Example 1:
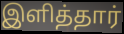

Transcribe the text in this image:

இளித்தார்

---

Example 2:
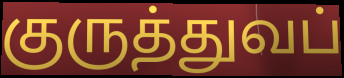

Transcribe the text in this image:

குருத்துவப்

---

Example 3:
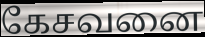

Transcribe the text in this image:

கேசவனை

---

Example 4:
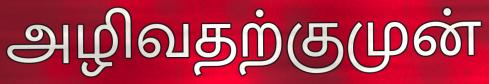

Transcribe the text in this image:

அழிவதற்குமுன்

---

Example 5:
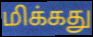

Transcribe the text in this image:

மிக்கது